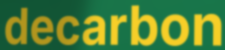
decarbon